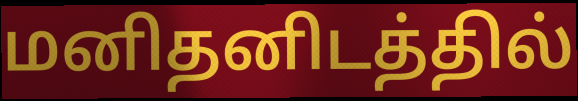
மனிதனிடத்தில்